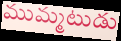
ముమ్మటుడు